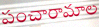
పంచారామాల